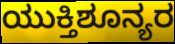
ಯುಕ್ತಿಶೂನ್ಯರ